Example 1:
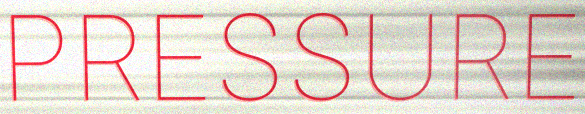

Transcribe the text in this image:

PRESSURE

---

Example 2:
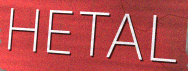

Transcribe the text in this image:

HETAL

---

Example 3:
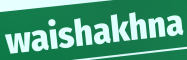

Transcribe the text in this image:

waishakhna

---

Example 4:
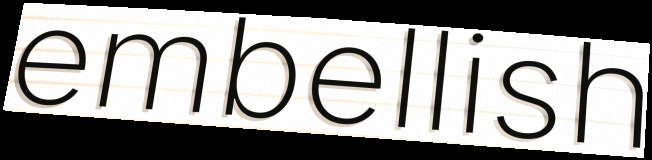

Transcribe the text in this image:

embellish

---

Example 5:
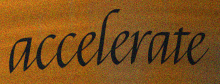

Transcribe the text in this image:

accelerate